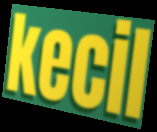
kecil